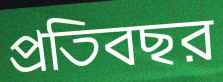
প্রতিবছর